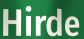
Hirde